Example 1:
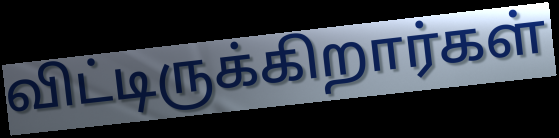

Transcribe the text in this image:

விட்டிருக்கிறார்கள்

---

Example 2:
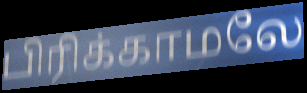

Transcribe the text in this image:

பிரிக்காமலே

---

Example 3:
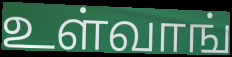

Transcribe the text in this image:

உள்வாங்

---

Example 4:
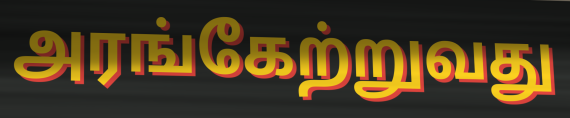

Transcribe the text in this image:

அரங்கேற்றுவது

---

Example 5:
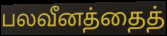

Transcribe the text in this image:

பலவீனத்தைத்